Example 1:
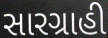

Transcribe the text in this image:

સારગ્રાહી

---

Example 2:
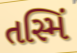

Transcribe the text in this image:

તસ્મિં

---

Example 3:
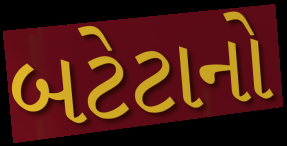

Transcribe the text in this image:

બટેટાનો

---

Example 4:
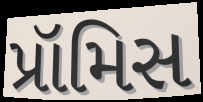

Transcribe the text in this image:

પ્રૉમિસ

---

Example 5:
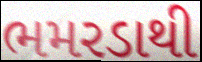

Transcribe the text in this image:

ભમરડાથી